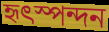
হৃৎস্পন্দন